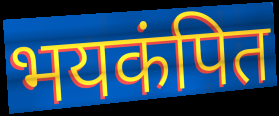
भयकंपित